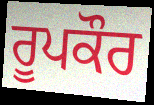
ਰੂਪਕੌਰ